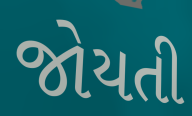
જોયતી